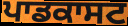
ਪਾਡਕਾਸਟ